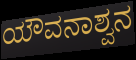
ಯೌವನಾಶ್ವನ